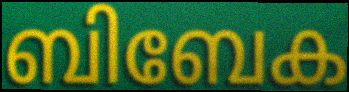
ബിബേക